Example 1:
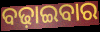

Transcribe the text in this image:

ବଢ଼ାଇବାର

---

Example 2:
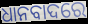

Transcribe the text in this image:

ଧାନବାଦରେ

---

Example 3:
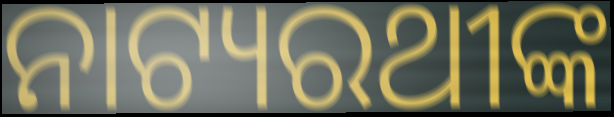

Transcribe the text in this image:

ନାଟ୍ୟରଥୀଙ୍କ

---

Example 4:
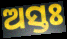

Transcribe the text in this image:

ଅସ୍ତଃ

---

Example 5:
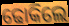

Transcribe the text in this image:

ଢୋକିଲେ